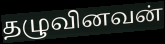
தழுவினவன்